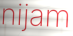
nijam